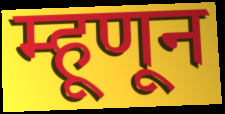
म्हूणून